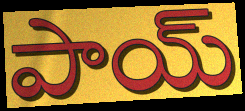
పాయ్